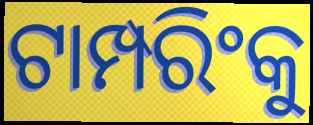
ଟାମ୍ପରିଂକୁ